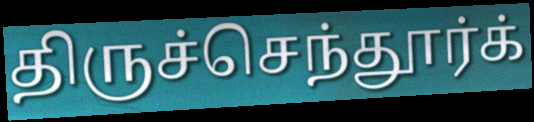
திருச்செந்தூர்க்